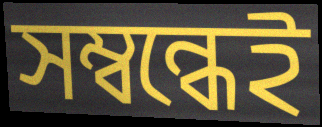
সম্বন্ধেই